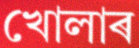
খোলাৰ